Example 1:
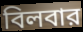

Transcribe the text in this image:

বিলবার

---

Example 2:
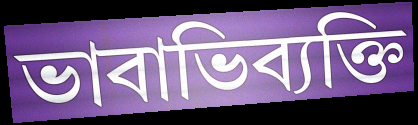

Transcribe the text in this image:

ভাবাভিব্যক্তি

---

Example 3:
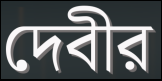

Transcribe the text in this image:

দেবীর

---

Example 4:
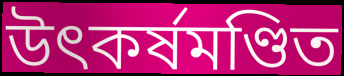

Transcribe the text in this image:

উৎকর্ষমণ্ডিত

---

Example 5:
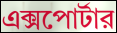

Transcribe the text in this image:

এক্সপোর্টার